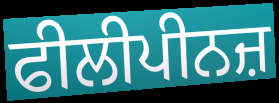
ਫੀਲੀਪੀਨਜ਼